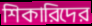
শিকারিদের